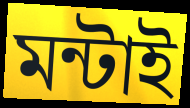
মন্টাই